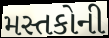
મસ્તકોની